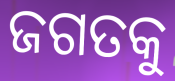
ଜଗତକୁ